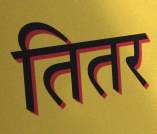
तितर